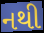
નથી